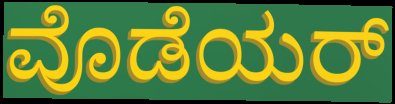
ವೊಡೆಯರ್